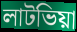
লাটভিয়া